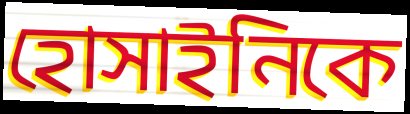
হোসাইনিকে